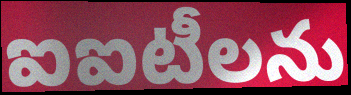
ఐఐటీలను